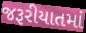
જરૂરીયાતમાં